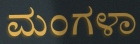
ಮಂಗಳಾ